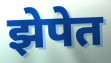
झेपेत